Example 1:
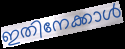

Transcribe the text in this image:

ഇതിനേക്കാൾ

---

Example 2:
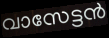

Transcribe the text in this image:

വാസേട്ടൻ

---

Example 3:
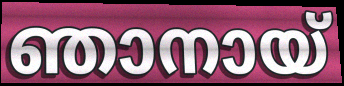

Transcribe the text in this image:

ഞാനായ്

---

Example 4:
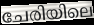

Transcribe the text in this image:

ചേരിയിലെ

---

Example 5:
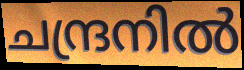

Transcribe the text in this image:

ചന്ദ്രനിൽ